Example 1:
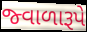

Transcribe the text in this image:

જ્વાળારૂપે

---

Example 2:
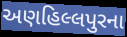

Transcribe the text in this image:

અણહિલ્લપુરના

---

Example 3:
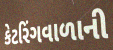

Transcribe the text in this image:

કેટરિંગવાળાની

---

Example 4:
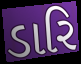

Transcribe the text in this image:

ડારિ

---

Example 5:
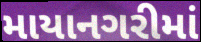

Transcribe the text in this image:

માયાનગરીમાં